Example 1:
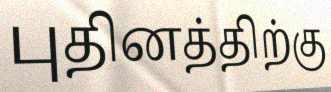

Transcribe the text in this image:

புதினத்திற்கு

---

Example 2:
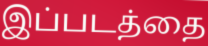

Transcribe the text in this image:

இப்படத்தை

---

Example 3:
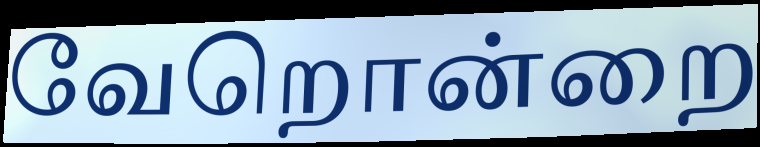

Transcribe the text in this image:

வேறொன்றை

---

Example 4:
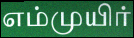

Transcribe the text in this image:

எம்முயிர்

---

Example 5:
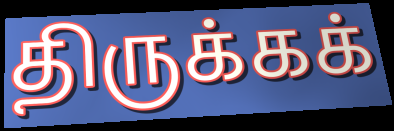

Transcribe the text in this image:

திருக்கக்